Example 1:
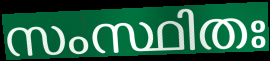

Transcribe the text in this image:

സംസ്ഥിതഃ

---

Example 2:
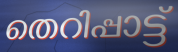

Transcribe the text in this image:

തെറിപ്പാട്ട്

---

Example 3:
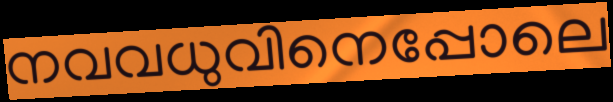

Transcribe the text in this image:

നവവധുവിനെപ്പോലെ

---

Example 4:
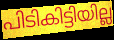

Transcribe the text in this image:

പിടികിട്ടിയില്ല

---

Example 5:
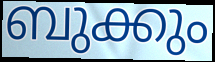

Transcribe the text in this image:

ബുക്കും